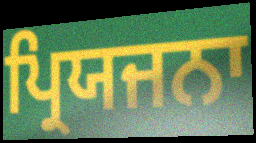
ਪ੍ਰਿਯਜਨਾ